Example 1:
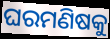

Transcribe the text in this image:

ଘରମଣିଷକୁ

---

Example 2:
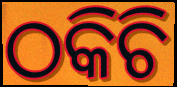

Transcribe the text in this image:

ଠକିଚି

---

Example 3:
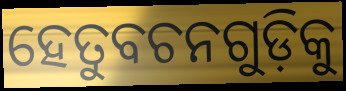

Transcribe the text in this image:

ହେତୁବଚନଗୁଡ଼ିକୁ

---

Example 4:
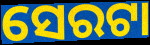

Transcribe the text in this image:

ସେରଟା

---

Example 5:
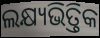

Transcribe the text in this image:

ଲକ୍ଷ୍ୟଭିତ୍ତିକ